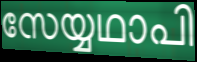
സേയ്യഥാപി